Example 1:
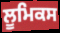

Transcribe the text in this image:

ਲੂਮਿਕਸ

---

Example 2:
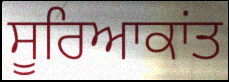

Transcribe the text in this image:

ਸੂਰਿਆਕਾਂਤ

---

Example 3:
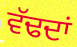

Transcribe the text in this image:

ਵੱਢਦਾਂ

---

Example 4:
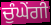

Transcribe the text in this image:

ਚੁੰਘੇਂਗੀ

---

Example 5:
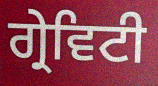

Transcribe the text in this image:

ਗ੍ਰੇਵਿਟੀ